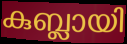
കുബ്ലായി